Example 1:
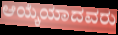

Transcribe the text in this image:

ಆಯ್ಕೆಯಾದವರು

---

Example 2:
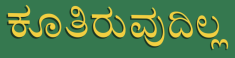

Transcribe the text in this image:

ಕೂತಿರುವುದಿಲ್ಲ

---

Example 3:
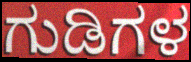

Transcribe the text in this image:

ಗುಡಿಗಳ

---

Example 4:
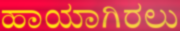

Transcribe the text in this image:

ಹಾಯಾಗಿರಲು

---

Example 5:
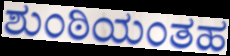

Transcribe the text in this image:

ಶುಂಠಿಯಂತಹ